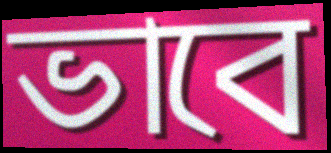
ভাবে